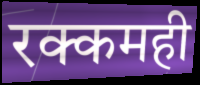
रक्कमही